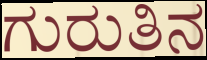
ಗುರುತಿನ